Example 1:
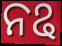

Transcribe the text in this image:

ନୡ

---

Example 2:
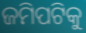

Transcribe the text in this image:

ଜମିପଟିକୁ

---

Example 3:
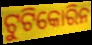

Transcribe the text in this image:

ଟୁଟିକୋରିନ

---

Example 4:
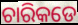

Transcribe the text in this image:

ଚାରିକଡେ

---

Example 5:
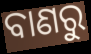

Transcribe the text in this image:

ବାଣରୁ